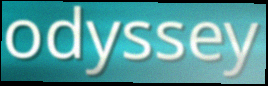
odyssey